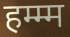
हम्म्म